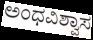
ಅಂಧವಿಶ್ವಾಸ